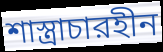
শাস্ত্রাচারহীন